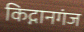
किद्गानगंज